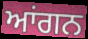
ਆਂਗਨ